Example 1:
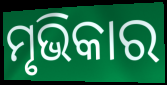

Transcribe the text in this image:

ମୃଭିକାର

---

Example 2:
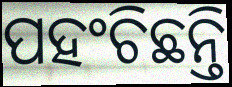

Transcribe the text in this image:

ପହଂଚିଛନ୍ତି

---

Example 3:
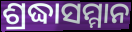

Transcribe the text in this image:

ଶ୍ରଦ୍ଧାସମ୍ମାନ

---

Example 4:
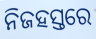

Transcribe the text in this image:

ନିଜହସ୍ତରେ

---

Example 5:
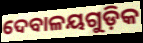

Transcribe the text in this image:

ଦେବାଳୟଗୁଡ଼ିକ